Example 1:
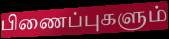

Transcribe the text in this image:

பிணைப்புகளும்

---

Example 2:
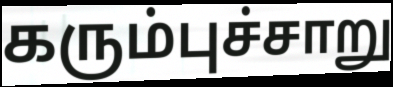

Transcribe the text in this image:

கரும்புச்சாறு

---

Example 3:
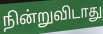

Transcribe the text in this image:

நின்றுவிடாது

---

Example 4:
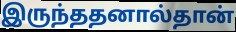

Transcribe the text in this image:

இருந்ததனால்தான்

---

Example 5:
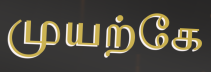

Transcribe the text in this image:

முயற்கே